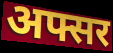
अफ्सर